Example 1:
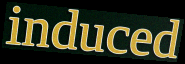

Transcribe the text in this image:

induced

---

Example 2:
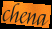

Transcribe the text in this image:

chena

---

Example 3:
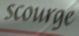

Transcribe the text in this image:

scourge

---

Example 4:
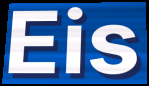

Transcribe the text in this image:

Eis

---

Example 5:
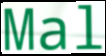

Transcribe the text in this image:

Mal